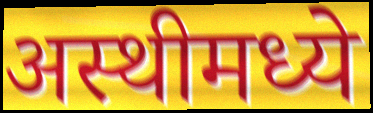
अस्थीमध्ये